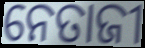
ନେତାଜୀ